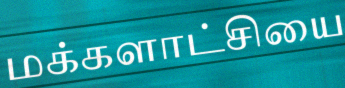
மக்களாட்சியை